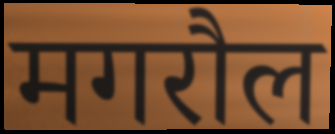
मगरौल